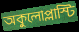
অকুলোপ্লাস্টি